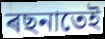
ৰছনাতেই